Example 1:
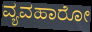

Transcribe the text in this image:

ವ್ಯವಹಾರೋ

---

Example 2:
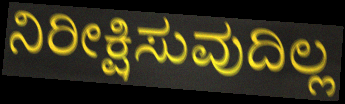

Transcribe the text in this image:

ನಿರೀಕ್ಷಿಸುವುದಿಲ್ಲ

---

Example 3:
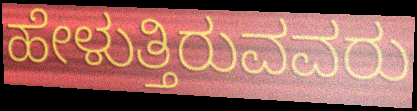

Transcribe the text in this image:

ಹೇಳುತ್ತಿರುವವರು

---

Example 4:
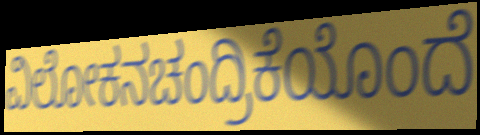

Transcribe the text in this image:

ವಿಲೋಕನಚಂದ್ರಿಕೆಯೊಂದೆ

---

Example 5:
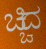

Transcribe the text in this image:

ಚ್ಚಿದ